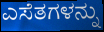
ಎಸೆತಗಳನ್ನು